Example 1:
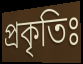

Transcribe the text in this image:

প্রকৃতিঃ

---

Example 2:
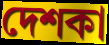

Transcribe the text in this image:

দেশকা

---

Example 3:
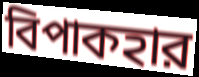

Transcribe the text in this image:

বিপাকহার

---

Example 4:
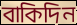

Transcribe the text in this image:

বাকিদিন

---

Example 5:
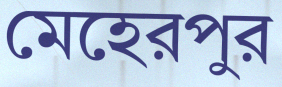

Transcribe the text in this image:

মেহেরপুর